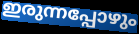
ഇരുന്നപ്പോഴും